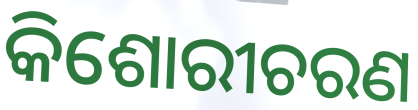
କିଶୋରୀଚରଣ